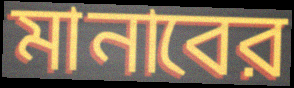
মানাবের